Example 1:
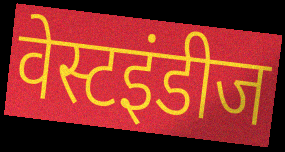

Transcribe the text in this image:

वेस्टइंडीज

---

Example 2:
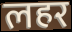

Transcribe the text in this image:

लहर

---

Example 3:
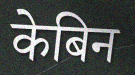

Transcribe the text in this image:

केबिन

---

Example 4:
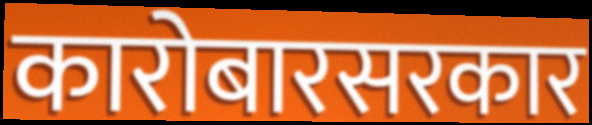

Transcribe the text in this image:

कारोबारसरकार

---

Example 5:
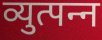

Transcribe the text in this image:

व्युत्पन्न